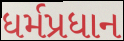
ધર્મપ્રધાન